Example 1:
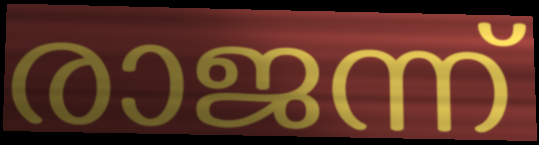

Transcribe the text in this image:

രാജന്ന്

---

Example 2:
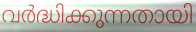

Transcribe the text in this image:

വർദ്ധിക്കുന്നതായി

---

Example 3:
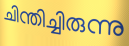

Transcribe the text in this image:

ചിന്തിച്ചിരുന്നു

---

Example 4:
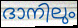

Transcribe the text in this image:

ദാനിലും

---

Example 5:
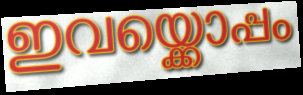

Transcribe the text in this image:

ഇവയ്ക്കൊപ്പം